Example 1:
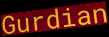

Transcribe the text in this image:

Gurdian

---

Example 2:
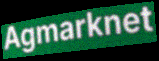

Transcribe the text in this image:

Agmarknet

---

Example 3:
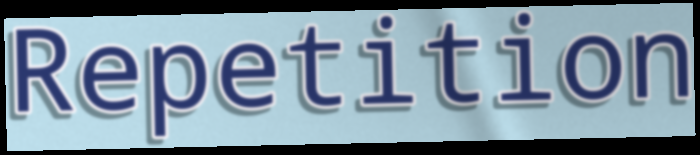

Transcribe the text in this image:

Repetition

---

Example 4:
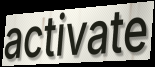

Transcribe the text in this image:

activate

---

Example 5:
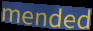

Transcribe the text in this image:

mended